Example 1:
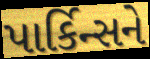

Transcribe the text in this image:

પાર્કિન્સને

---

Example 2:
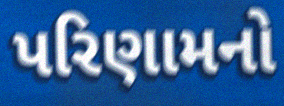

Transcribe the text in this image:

પરિણામનો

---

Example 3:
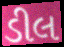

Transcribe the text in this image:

ડીલ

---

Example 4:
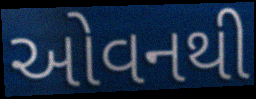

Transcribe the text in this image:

ઓવનથી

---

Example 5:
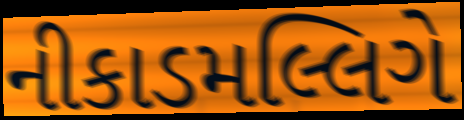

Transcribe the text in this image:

નીકાડમલ્લિગે